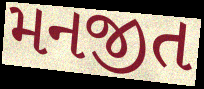
મનજીત